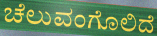
ಚೆಲುವಂಗೊಲಿದೆ